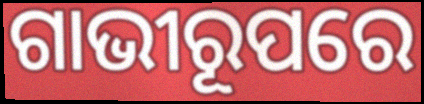
ଗାଭୀରୂପରେ